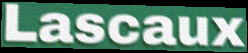
Lascaux